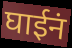
घाईनं